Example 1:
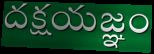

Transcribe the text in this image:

దక్షయజ్ఞం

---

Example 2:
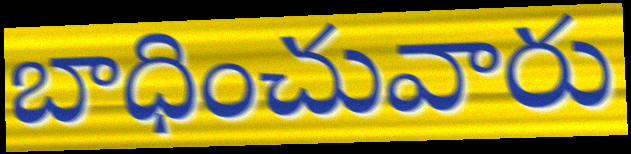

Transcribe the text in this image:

బాధించువారు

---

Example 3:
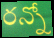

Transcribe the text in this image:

రన్నో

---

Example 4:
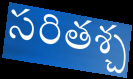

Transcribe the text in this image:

సరితశ్చ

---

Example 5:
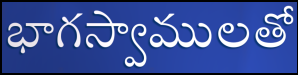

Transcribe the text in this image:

భాగస్వాములతో